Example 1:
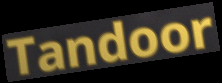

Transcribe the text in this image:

Tandoor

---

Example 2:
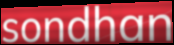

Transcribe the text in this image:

sondhan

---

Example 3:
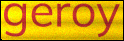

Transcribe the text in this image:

geroy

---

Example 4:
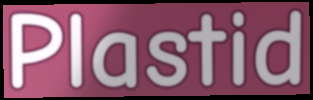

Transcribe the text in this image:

Plastid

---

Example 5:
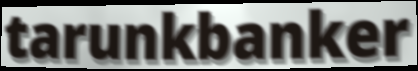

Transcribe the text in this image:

tarunkbanker